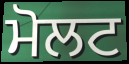
ਮੋਲਟ